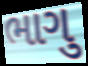
ભાગુ